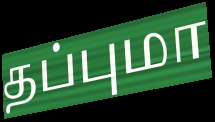
தப்புமா